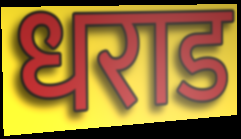
धराड